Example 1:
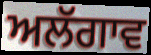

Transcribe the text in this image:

ਅਲੱਗਾਵ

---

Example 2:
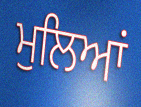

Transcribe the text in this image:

ਮੁਲਿਆਂ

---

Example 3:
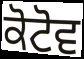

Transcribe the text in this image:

ਕੋਟੋਵ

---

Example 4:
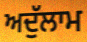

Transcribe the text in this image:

ਅਦੁੱਲਾਮ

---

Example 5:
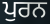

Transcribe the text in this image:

ਪੁਰਨ